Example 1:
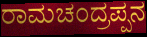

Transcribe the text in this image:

ರಾಮಚಂದ್ರಪ್ಪನ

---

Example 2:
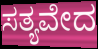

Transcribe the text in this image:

ಸತ್ಯವೇದ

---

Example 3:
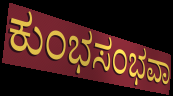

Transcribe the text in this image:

ಕುಂಭಸಂಭವಾ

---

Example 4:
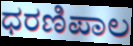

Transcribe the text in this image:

ಧರಣಿಪಾಲ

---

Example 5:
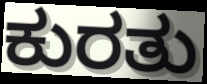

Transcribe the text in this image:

ಕುರತು